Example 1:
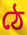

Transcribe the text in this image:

ঠে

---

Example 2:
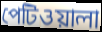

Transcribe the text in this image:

পেটিওয়ালা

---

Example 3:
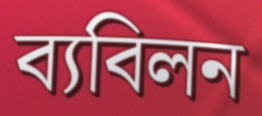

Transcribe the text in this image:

ব্যবিলন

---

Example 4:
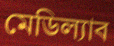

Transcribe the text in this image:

মেডিল্যাব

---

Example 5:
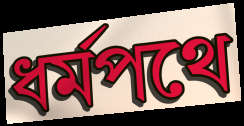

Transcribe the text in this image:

ধর্মপথে